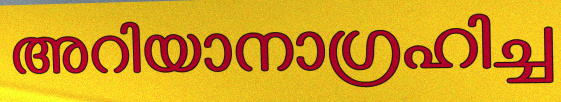
അറിയാനാഗ്രഹിച്ച